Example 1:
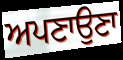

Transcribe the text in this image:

ਅਪਣਾਉਣਾ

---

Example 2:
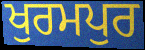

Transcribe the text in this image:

ਖੁਰਮਪੁਰ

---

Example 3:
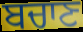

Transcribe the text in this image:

ਬਚਾਣ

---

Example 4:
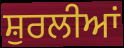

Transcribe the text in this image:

ਸ਼ੁਰਲੀਆਂ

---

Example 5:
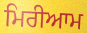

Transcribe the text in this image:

ਮਿਰੀਆਮ